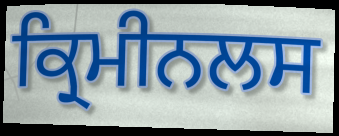
ਕ੍ਰਿਮੀਨਲਸ